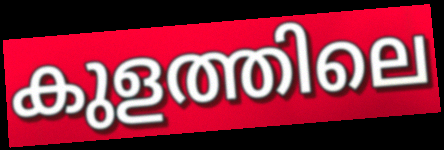
കുളത്തിലെ